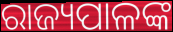
ରାଜ୍ୟପାଳଙ୍କ